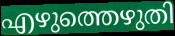
എഴുത്തെഴുതി